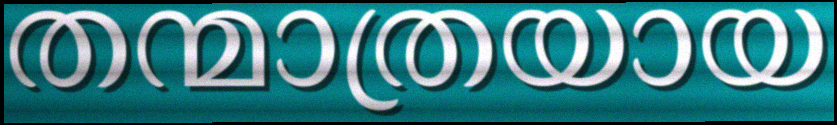
തന്മാത്രയായ